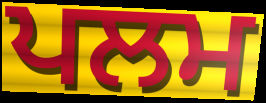
ਪਲਮ